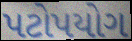
પટોપયોગ